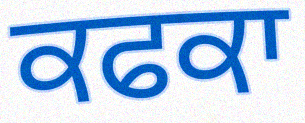
ਕਫਕਾ